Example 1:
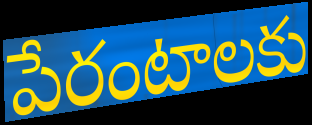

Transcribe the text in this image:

పేరంటాలకు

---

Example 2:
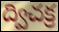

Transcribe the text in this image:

ద్విచక్ర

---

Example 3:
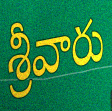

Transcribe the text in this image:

శ్రీవారు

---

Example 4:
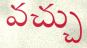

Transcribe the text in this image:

వచ్చు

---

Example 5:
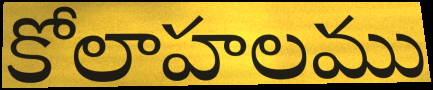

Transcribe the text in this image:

కోలాహలము